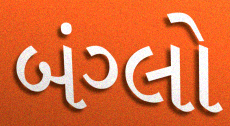
બંગ્લો